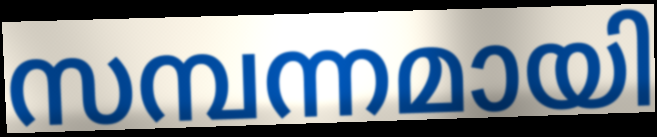
സമ്പന്നമായി